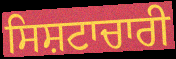
ਸਿਸ਼ਟਾਚਾਰੀ